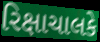
રિક્ષાચાલકે